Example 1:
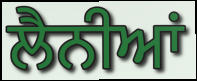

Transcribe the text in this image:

ਲੈਨੀਆਂ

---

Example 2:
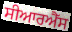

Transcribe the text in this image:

ਸੀਆਰਐੱਸ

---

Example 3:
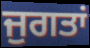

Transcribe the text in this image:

ਜੁਗਤਾਂ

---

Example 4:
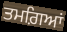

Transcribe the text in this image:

ਤਮਗ਼ਿਆਂ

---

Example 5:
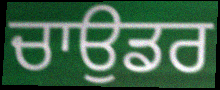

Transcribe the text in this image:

ਚਾਉਡਰ